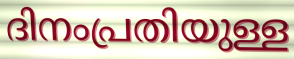
ദിനംപ്രതിയുള്ള